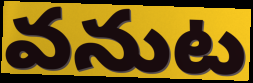
వనుట